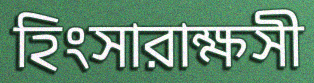
হিংসারাক্ষসী